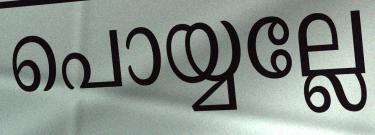
പൊയ്യല്ലേ